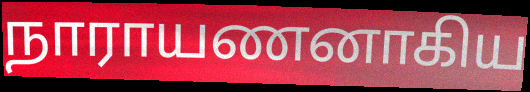
நாராயணனாகிய